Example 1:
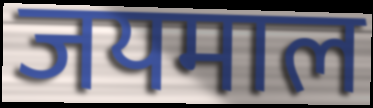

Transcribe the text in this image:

जयमाल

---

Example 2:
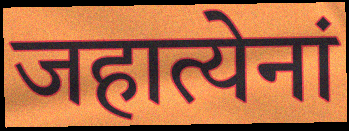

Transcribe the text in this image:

जहात्येनां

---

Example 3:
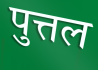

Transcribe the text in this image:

पुत्तल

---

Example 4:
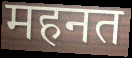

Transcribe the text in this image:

महनत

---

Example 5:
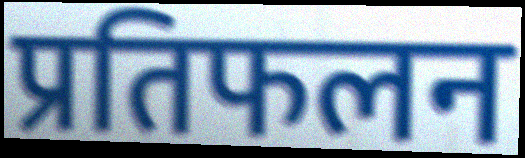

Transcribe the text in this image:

प्रतिफलन